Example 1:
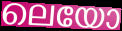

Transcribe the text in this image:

ലെയോ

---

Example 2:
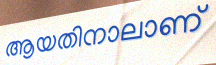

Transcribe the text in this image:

ആയതിനാലാണ്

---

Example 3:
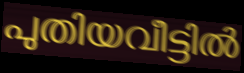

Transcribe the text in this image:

പുതിയവീട്ടിൽ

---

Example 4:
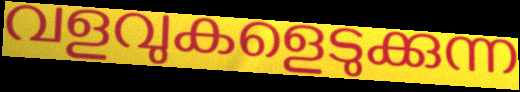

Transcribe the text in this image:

വളവുകളെടുക്കുന്ന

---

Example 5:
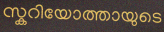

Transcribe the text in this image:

സ്കറിയോത്തായുടെ